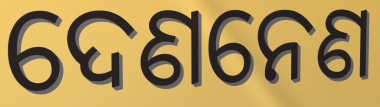
ଦେଣନେଣ